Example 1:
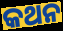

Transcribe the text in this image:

କଥନ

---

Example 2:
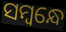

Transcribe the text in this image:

ସମ୍ବନ୍ଧେ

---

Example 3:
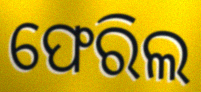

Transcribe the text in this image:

ଫେରିଲ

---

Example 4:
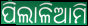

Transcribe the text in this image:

ପିଲାଳିଆମି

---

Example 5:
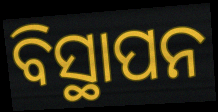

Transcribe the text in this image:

ବିସ୍ଥାପନ